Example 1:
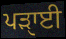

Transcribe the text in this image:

ਪੜਾੑਈ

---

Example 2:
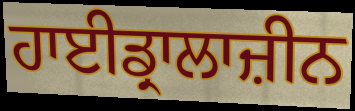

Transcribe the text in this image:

ਹਾਈਡ੍ਰਾਲਾਜ਼ੀਨ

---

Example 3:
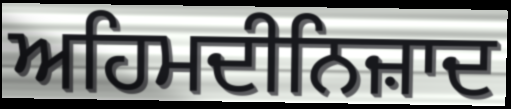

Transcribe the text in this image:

ਅਹਿਮਦੀਨਿਜ਼ਾਦ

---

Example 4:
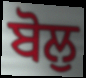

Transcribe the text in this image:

ਬੋਲੁ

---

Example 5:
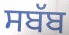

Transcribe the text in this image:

ਸਬੱਬ